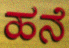
ಹನೆ